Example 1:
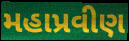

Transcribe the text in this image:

મહાપ્રવીણ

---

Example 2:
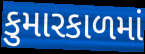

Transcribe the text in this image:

કુમારકાળમાં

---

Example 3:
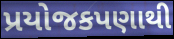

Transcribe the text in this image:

પ્રયોજકપણાથી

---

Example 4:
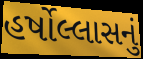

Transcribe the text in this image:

હર્ષોલ્લાસનું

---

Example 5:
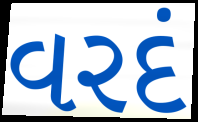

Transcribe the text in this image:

વરદં